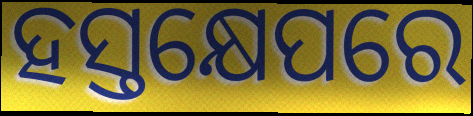
ହସ୍ତକ୍ଷେପରେ